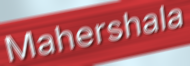
Mahershala